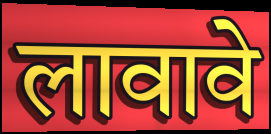
लावावे